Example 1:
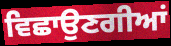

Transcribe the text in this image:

ਵਿਛਾਉਣਗੀਆਂ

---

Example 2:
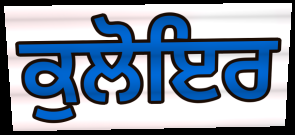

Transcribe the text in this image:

ਕੁਲੋਇਰ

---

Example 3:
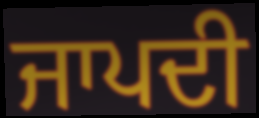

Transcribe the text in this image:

ਜਾਪਦੀ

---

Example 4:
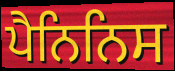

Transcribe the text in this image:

ਪੈਨਿਨਿਸ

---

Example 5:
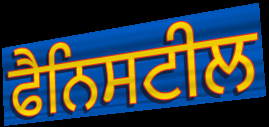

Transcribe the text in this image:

ਫੈਨਿਸਟੀਲ